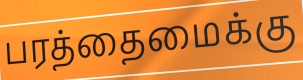
பரத்தைமைக்கு